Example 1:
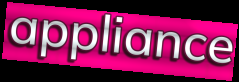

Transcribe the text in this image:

appliance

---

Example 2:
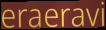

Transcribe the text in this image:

eraeravi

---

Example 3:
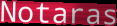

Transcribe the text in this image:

Notaras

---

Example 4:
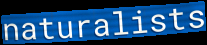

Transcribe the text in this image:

naturalists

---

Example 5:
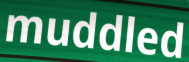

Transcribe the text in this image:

muddled